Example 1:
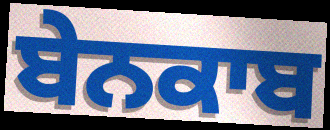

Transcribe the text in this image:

ਬੇਨਕਾਬ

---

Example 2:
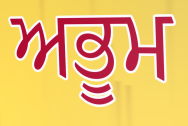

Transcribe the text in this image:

ਅਭੂਮ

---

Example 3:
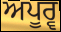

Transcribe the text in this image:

ਅਪੂਰ੍ਵ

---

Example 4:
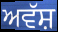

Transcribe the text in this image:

ਅਵੱਸ਼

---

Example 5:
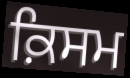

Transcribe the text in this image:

ਕ਼ਿਸਮ